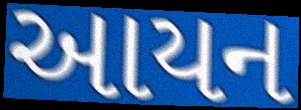
આયન